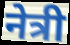
नेत्री